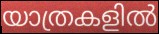
യാത്രകളിൽ